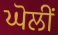
ਘੋਲੀਂ